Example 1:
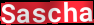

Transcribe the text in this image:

Sascha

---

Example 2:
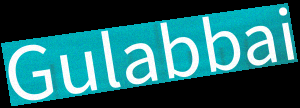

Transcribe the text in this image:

Gulabbai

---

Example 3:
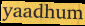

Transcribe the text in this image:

yaadhum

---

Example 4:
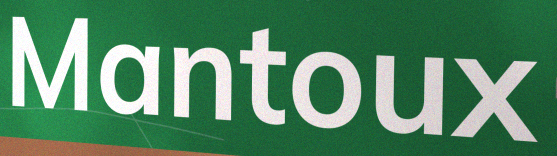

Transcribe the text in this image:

Mantoux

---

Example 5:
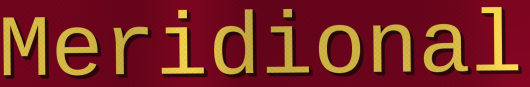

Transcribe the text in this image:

Meridional